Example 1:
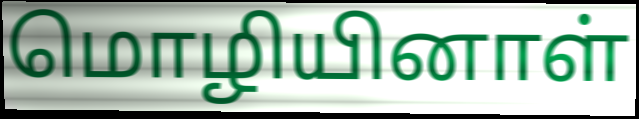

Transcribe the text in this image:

மொழியினாள்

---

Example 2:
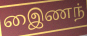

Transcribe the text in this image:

இைணந்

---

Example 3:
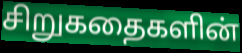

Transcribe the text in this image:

சிறுகதைகளின்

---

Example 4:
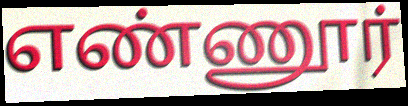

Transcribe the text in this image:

எண்ணூர்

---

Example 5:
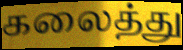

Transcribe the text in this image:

கலைத்து